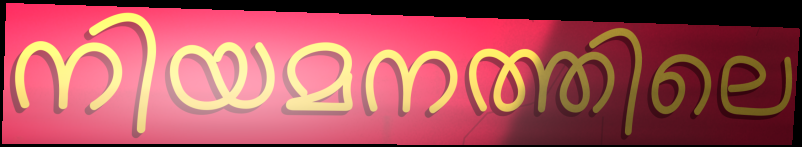
നിയമനത്തിലെ